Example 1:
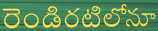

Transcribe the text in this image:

రెండిరటిలోనూ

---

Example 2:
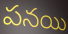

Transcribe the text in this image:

పనయి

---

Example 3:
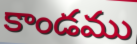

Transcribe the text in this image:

కాండము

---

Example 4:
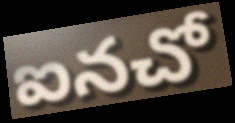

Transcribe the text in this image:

ఐనచో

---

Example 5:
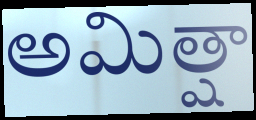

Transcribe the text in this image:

అమిత్షా